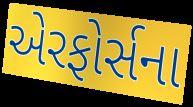
એરફોર્સના